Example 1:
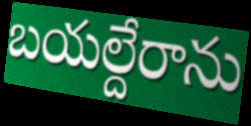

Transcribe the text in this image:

బయల్దేరాను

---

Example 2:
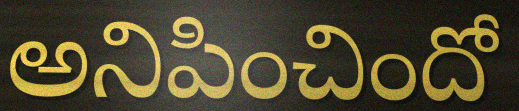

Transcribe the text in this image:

అనిపించిందో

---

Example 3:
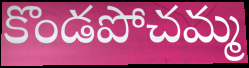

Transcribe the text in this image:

కొండపోచమ్మ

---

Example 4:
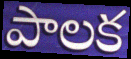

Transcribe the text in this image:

పాలక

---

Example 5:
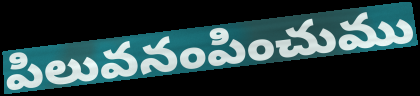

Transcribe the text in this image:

పిలువనంపించుము